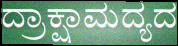
ದ್ರಾಕ್ಷಾಮದ್ಯದ